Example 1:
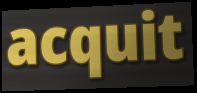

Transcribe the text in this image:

acquit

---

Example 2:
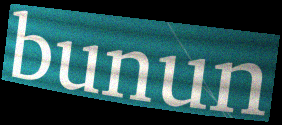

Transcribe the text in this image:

bunun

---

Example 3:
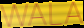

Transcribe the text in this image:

WALA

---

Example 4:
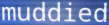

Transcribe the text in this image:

muddied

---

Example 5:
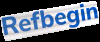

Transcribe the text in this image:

Refbegin